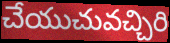
చేయుచువచ్చిరి